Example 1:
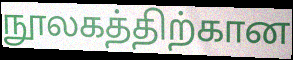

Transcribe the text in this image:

நூலகத்திற்கான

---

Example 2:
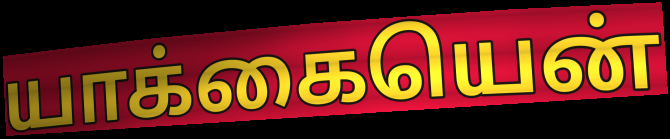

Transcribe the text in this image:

யாக்கையென்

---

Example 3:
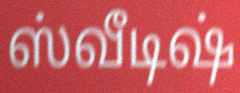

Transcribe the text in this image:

ஸ்வீடிஷ்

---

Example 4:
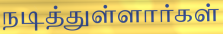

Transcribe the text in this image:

நடித்துள்ளார்கள்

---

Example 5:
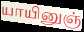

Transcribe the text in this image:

யாயினுஞ்